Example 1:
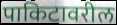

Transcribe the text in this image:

पाकिटावरील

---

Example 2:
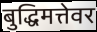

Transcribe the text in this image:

बुद्धिमत्तेवर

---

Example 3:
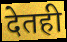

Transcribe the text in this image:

देतही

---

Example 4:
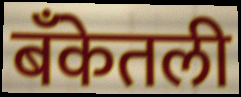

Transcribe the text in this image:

बँकेतली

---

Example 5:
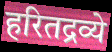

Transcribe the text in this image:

हरितद्रव्ये